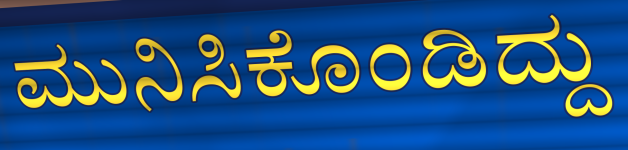
ಮುನಿಸಿಕೊಂಡಿದ್ದು